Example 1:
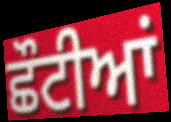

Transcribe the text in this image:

ਛੌਟੀਆਂ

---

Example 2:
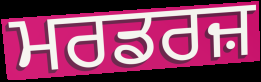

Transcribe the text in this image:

ਮਰਡਰਜ਼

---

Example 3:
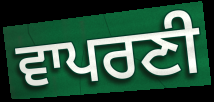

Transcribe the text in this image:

ਵਾਪਰਣੀ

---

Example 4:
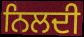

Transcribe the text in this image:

ਨਿਲਦੀ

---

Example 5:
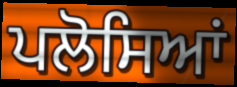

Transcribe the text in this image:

ਪਲੋਸਿਆਂ